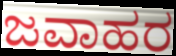
ಜವಾಹರ